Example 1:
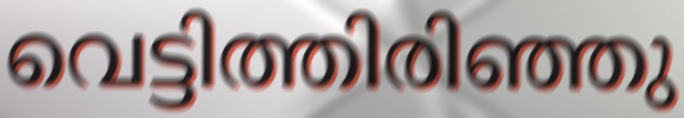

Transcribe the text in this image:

വെട്ടിത്തിരിഞ്ഞു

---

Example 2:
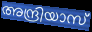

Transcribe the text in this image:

അന്ദ്രിയാസ്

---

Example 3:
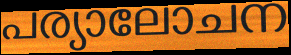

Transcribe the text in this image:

പര്യാലോചന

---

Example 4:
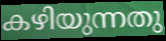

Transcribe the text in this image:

കഴിയുന്നതു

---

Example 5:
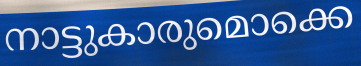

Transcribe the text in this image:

നാട്ടുകാരുമൊക്കെ